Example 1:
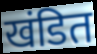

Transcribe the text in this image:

खंडित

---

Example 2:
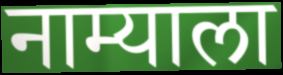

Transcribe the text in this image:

नाम्याला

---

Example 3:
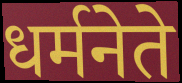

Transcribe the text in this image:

धर्मनेते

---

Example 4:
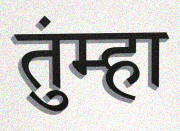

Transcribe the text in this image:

तुंम्हा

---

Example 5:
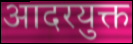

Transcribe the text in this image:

आदरयुक्त